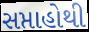
સપ્તાહોથી